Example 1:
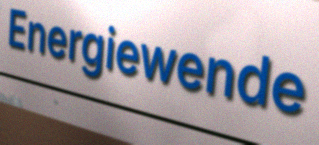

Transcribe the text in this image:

Energiewende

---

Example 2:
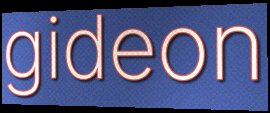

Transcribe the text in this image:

gideon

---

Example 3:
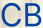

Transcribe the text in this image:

CB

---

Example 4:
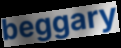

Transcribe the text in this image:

beggary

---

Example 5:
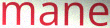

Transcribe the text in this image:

mane